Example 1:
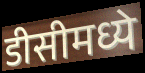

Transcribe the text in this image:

डीसीमध्ये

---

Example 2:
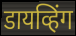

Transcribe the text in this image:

डायव्हिंग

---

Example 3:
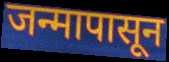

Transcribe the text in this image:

जन्मापासून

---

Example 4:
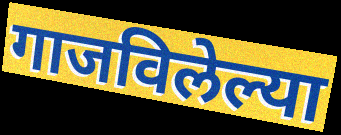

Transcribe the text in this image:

गाजविलेल्या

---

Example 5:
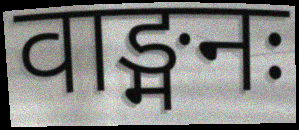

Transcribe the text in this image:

वाङ्मनः